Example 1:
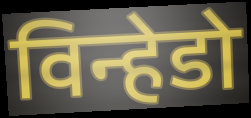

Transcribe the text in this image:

विन्हेडो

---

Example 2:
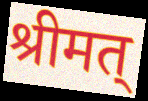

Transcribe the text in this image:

श्रीमत्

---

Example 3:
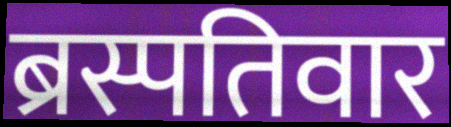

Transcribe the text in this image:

ब्रस्पतिवार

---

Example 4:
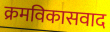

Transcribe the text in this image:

क्रमविकासवाद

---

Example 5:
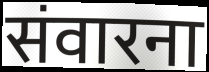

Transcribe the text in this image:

संवारना